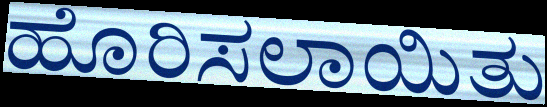
ಹೊರಿಸಲಾಯಿತು